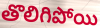
తొలిగిపోయి